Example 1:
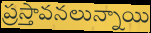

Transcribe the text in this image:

ప్రస్తావనలున్నాయి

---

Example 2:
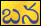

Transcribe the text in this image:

బన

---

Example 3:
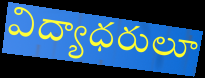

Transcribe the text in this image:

విద్యాధరులూ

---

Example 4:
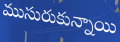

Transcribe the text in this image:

ముసురుకున్నాయి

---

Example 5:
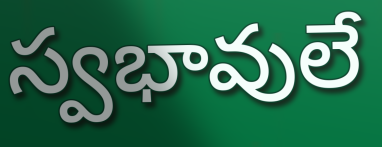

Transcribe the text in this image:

స్వభావులే